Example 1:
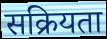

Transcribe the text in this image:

सक्रियता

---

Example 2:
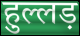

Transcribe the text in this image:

हुल्लड़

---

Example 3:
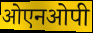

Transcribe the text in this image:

ओएनओपी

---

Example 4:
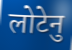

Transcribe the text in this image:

लोटेनु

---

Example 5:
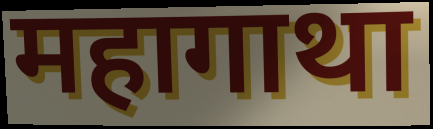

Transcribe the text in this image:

महागाथा